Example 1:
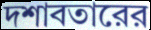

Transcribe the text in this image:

দশাবতারের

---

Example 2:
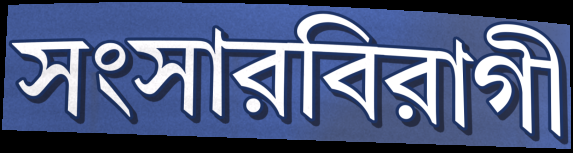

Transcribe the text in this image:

সংসারবিরাগী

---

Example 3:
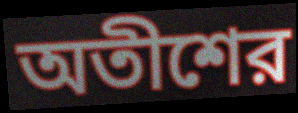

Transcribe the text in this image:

অতীশের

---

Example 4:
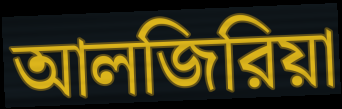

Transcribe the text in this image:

আলজিরিয়া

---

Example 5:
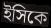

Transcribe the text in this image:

ইসিকে